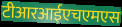
टीआरआईएचएमएस